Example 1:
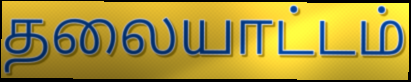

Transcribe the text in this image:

தலையாட்டம்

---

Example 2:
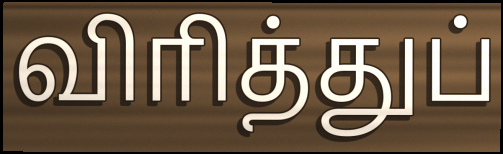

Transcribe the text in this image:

விரித்துப்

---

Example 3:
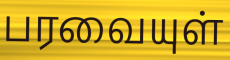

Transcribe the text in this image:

பரவையுள்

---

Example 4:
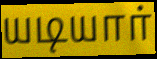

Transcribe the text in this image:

யடியார்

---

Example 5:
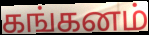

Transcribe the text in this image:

கங்கனம்